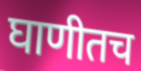
घाणीतच